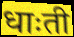
धाःती